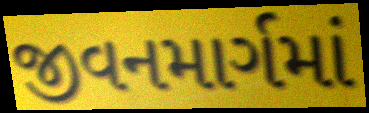
જીવનમાર્ગમાં